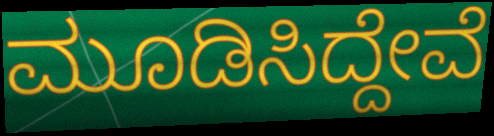
ಮೂಡಿಸಿದ್ದೇವೆ